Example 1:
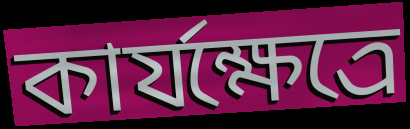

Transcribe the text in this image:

কার্যক্ষেত্রে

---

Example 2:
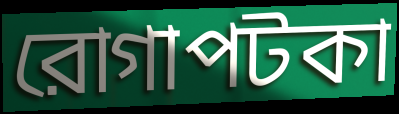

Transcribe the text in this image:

রোগাপটকা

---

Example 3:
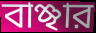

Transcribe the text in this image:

বাঞ্ছার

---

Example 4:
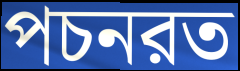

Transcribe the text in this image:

পচনরত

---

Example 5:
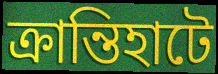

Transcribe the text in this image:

ক্রান্তিহাটে